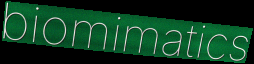
biomimatics